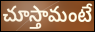
చూస్తామంటే